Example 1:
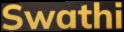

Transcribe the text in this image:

Swathi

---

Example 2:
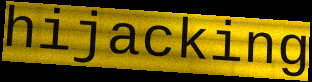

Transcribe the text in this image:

hijacking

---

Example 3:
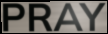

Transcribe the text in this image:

PRAY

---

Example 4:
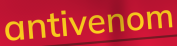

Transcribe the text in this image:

antivenom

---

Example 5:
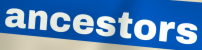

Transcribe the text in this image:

ancestors